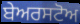
ਬੇਅਰਸਟੋਅ